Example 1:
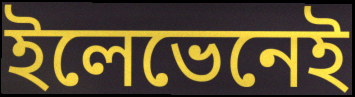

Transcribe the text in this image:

ইলেভেনেই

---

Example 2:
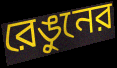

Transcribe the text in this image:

রেঙুনের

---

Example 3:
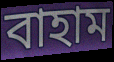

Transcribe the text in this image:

বাহাম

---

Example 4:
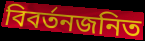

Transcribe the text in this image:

বিবর্তনজনিত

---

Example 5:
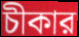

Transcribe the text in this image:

চীকার